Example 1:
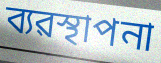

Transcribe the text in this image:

ব্যৱস্থাপনা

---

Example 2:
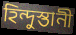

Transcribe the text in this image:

হিন্দুস্তানী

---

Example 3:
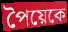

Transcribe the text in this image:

পৈয়েকে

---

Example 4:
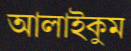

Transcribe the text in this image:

আলাইকুম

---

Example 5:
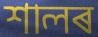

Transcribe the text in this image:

শালৰ